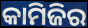
କାମିଜିର